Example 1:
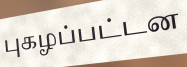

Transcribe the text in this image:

புகழப்பட்டன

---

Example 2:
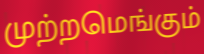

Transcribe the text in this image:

முற்றமெங்கும்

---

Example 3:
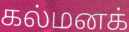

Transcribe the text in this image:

கல்மனக்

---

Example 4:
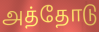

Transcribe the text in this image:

அத்தோடு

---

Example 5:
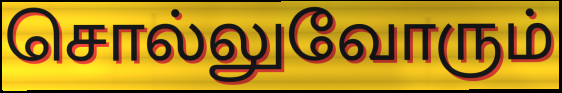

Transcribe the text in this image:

சொல்லுவோரும்